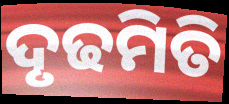
ଦୃଢମିତି